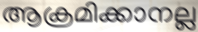
ആക്രമിക്കാനല്ല